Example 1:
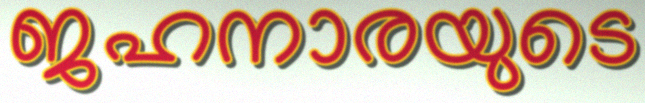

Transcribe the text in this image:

ജഹനാരയുടെ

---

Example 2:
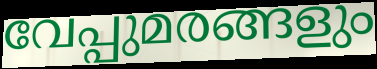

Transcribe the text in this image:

വേപ്പുമരങ്ങളും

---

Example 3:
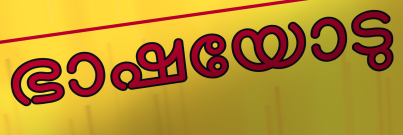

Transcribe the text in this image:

ഭാഷയോടു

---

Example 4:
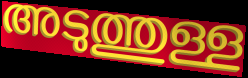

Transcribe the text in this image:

അടുത്തുള്ള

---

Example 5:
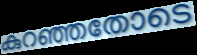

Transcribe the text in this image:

കുറഞ്ഞതോടെ